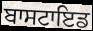
ਬਾਸਟਾਇਡ